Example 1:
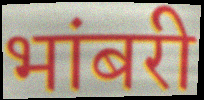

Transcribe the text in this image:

भांबरी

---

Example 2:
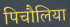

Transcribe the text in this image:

पिचौलिया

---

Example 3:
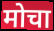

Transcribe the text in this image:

मोचा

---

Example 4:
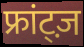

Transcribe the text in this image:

फ्रांट्ज़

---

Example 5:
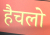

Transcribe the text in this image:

हैचलो